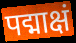
पद्माक्षं